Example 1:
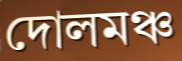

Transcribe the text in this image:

দোলমঞ্চ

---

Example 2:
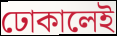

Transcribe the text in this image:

ঢোকালেই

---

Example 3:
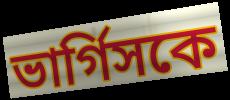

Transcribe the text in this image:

ভার্গিসকে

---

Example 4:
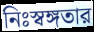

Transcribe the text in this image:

নিঃস্বঙ্গতার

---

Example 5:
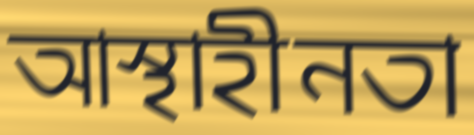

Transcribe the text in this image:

আস্থাহীনতা